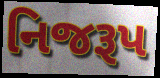
નિજરૂપ